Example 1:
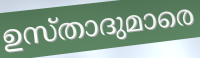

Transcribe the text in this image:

ഉസ്താദുമാരെ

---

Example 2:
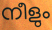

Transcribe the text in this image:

നീളും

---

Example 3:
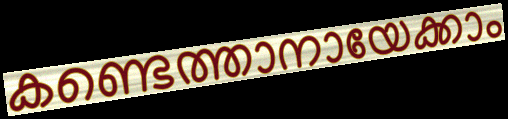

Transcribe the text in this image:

കണ്ടെത്താനായേക്കാം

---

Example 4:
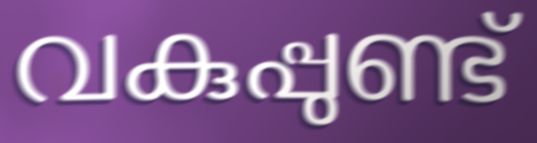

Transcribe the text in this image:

വകുപ്പുണ്ട്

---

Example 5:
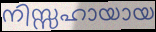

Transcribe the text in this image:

നിസ്സഹായായ